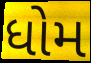
ધોમ